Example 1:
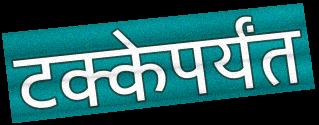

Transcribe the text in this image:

टक्केपर्यंत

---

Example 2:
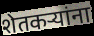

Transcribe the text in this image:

शेतकऱ्यांना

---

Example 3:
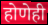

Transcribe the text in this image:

होणेही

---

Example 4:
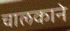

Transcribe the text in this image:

चालकाने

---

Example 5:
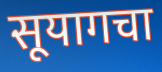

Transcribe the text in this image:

सूयागचा